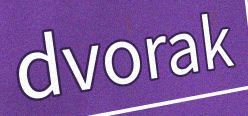
dvorak